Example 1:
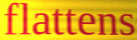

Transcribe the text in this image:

flattens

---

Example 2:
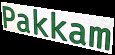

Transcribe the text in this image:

Pakkam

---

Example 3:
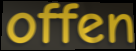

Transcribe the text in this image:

offen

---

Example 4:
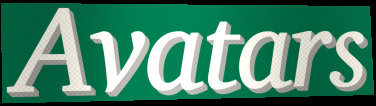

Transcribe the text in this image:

Avatars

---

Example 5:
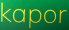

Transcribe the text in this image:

kapor